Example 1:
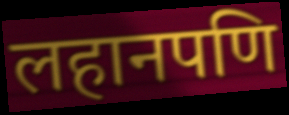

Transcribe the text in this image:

लहानपणि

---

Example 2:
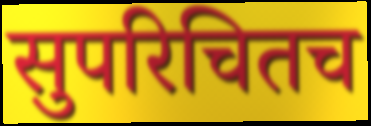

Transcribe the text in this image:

सुपरिचितच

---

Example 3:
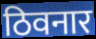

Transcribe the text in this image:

ठिवनार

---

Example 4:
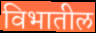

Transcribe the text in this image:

विभातील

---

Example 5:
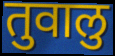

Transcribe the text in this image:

तुवालु